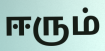
ஈரும்